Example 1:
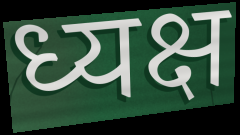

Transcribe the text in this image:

ध्यक्ष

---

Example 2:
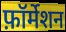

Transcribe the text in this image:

फ़ॉर्मेशन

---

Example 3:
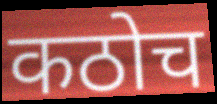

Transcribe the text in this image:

कठोच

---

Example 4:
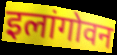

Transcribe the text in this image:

इलांगोवन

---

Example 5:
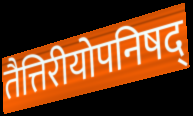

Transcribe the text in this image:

तैत्तिरीयोपनिषद्